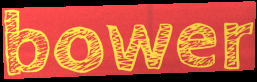
bower